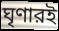
ঘৃণারই